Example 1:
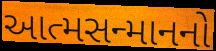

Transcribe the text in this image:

આત્મસન્માનનો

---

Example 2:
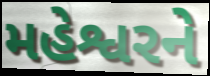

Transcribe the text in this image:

મહેશ્વરને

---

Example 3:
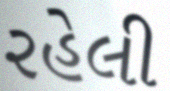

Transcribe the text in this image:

રહેલી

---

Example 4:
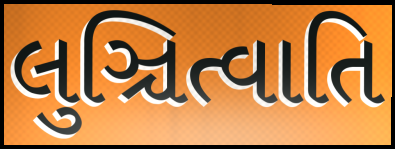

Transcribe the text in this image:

લુઞ્ચિત્વાતિ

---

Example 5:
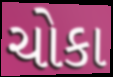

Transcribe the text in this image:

ચોકા